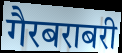
गैरबराबरी